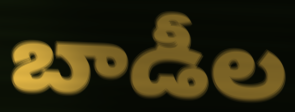
బాడీల